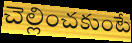
చెల్లించకుంటే